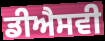
ਡੀਐਸਵੀ